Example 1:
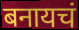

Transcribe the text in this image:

बनायचं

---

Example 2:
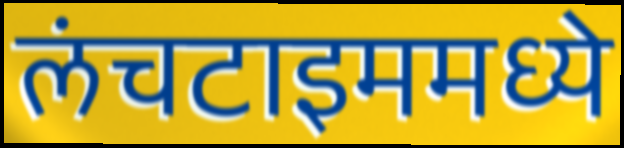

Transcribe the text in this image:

लंचटाइममध्ये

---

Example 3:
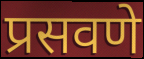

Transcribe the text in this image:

प्रसवणे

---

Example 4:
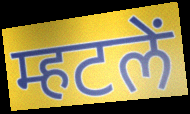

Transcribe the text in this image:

म्हटलें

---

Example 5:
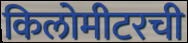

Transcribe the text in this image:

किलोमीटरची